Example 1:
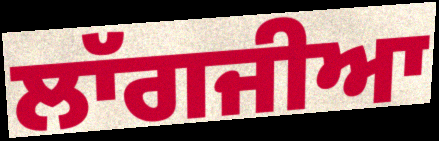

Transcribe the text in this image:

ਲਾੱਗਜੀਆ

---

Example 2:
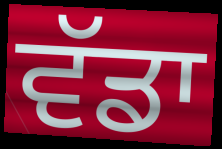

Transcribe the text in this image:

ਵੱਡਾ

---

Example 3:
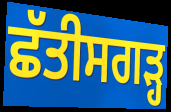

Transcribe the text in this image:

ਛੱਤੀਸਗੜ੍ਹ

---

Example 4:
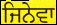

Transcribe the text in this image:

ਜਿਨੇਵਾ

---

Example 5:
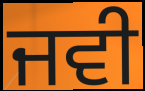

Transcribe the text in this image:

ਜਵੀ